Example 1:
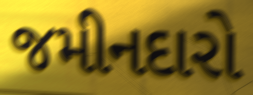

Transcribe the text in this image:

જમીનદારો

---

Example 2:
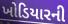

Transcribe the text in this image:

ખોડિયારની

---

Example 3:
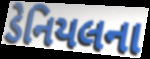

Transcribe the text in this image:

ડેનિયલના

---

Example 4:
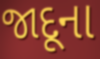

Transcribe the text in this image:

જાદૂના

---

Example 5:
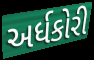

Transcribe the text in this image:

અર્ધકોરી